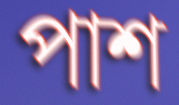
পাশ